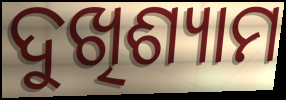
ଦୁଖିଶ୍ୟାମ